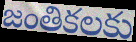
జంతికలకు